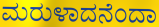
ಮರುಳಾದನೆಂದಾ